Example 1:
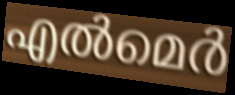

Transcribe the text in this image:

എൽമെർ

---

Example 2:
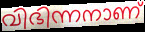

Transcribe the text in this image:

വിഭിന്നനാണ്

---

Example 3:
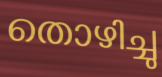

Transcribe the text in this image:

തൊഴിച്ചു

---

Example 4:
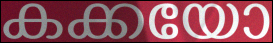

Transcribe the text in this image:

കക്കയോ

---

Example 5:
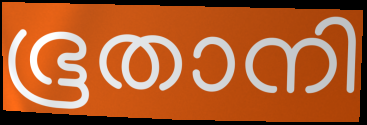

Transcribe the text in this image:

ഭൂതാനി